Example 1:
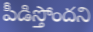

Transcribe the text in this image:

పీడిస్తోందని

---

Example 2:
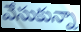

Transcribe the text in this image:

వేసుకున్నా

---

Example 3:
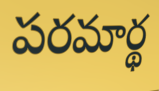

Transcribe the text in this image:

పరమార్థ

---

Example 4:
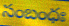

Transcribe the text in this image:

సంబంధః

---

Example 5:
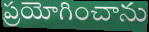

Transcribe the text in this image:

ప్రయోగించాను